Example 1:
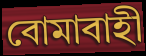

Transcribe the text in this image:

বোমাবাহী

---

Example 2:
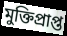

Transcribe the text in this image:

মুক্তিপ্রাপ্ত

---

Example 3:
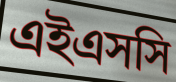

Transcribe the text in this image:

এইএসসি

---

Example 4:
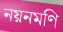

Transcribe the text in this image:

নয়নমণি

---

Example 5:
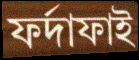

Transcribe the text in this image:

ফর্দাফাই